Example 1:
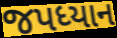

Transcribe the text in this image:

જપધ્યાન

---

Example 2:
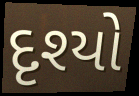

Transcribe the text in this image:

દૃશ્યો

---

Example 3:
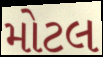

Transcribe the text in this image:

મોટલ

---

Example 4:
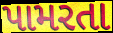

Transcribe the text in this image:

પામરતા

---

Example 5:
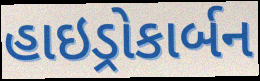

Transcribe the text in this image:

હાઇડ્રોકાર્બન